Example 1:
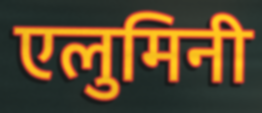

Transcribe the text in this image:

एलुमिनी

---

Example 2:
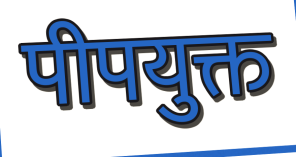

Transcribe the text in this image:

पीपयुक्त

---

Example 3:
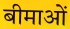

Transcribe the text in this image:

बीमाओं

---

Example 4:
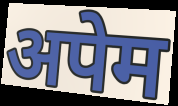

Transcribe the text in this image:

अपेम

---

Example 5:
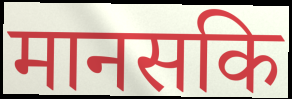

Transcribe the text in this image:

मानसकि